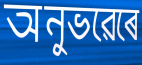
অনুভৱেৰে